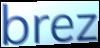
brez